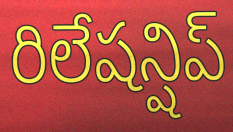
రిలేషన్షిప్